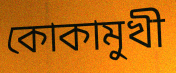
কোকামুখী